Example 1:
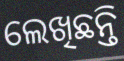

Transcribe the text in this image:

ଲେଖିଛନ୍ତି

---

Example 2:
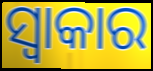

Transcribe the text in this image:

ସ୍ୱାକାର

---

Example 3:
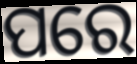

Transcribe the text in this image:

ପରେ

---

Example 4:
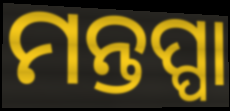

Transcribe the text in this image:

ମନ୍ତପ୍ପା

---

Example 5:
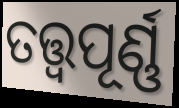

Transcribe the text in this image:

ତତ୍ତ୍ୱପୂର୍ଣ୍ଣ